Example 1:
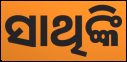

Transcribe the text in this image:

ସାଥିଙ୍କି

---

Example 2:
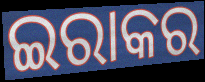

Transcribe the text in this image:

ଇରାକର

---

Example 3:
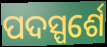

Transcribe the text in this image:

ପଦସ୍ପର୍ଶେ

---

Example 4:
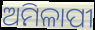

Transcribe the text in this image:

ଅମିଳାପୀ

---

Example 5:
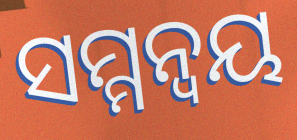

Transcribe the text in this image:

ସମ୍ମନ୍ୱୟ